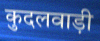
कुदलवाड़ी